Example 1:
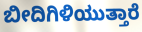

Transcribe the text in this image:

ಬೀದಿಗಿಳಿಯುತ್ತಾರೆ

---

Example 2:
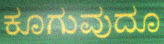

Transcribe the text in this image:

ಕೂಗುವುದೂ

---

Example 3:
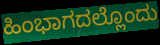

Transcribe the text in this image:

ಹಿಂಭಾಗದಲ್ಲೊಂದು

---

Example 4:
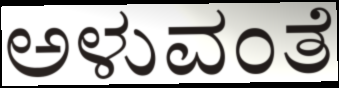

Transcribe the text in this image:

ಅಳುವಂತೆ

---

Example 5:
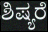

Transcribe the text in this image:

ಶಿಷ್ಯರೆ